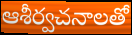
ఆశీర్వచనాలతో